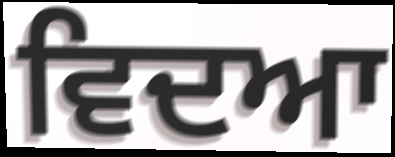
ਵਿਦਆ